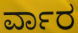
ರ್ವಾರ